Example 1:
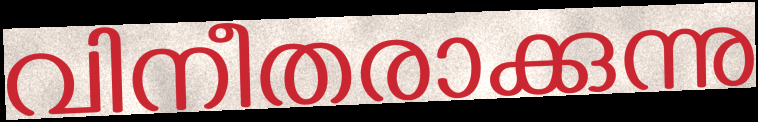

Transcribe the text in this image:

വിനീതരാക്കുന്നു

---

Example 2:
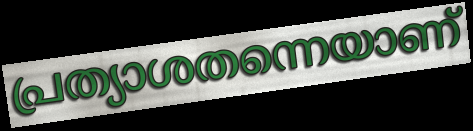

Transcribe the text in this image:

പ്രത്യാശതന്നെയാണ്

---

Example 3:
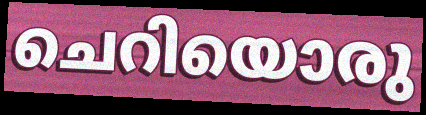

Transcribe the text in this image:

ചെറിയൊരു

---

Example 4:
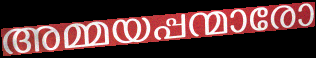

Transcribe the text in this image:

അമ്മയപ്പന്മാരോ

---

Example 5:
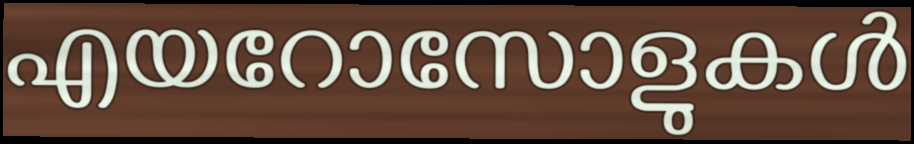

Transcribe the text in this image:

എയറോസോളുകൾ